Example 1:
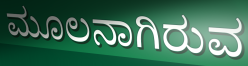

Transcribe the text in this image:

ಮೂಲನಾಗಿರುವ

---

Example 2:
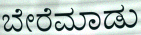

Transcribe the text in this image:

ಬೇರೆಮಾಡು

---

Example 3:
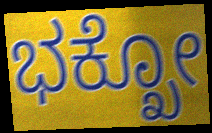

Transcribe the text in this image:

ಭಕ್ಖೋ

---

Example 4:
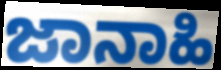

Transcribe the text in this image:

ಜಾನಾಹಿ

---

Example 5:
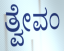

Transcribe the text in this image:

ತ್ವೇವಂ